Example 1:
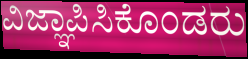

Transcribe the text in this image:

ವಿಜ್ಞಾಪಿಸಿಕೊಂಡರು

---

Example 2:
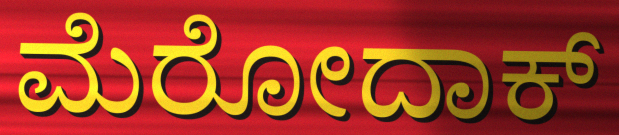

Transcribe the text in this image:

ಮೆರೋದಾಕ್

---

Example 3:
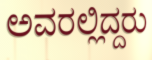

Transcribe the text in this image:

ಅವರಲ್ಲಿದ್ದರು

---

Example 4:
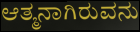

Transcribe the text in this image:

ಆತ್ಮನಾಗಿರುವನು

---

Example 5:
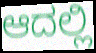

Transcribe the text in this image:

ಆದಲ್ಲಿ